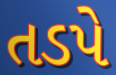
તડપે